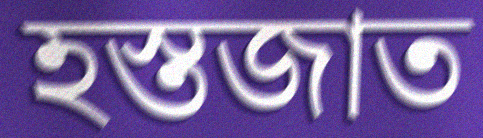
হস্তজাত